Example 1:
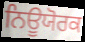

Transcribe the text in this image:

ਨਿਊਯੋਰਕ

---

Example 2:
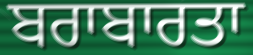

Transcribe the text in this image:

ਬਰਾਬਾਰਤਾ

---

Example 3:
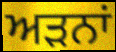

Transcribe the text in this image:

ਅੜਨਾਂ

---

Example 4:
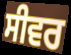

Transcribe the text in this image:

ਸੀਵਰ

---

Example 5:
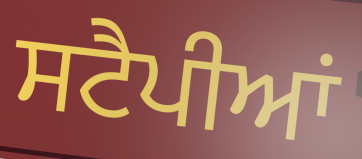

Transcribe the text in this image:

ਸਟੈਪੀਆਂ